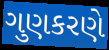
ગુણકરણે